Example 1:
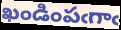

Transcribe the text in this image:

ఖండింపఁగాఁ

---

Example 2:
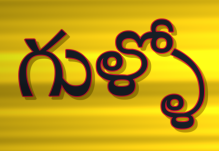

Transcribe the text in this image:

గుళ్ళో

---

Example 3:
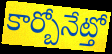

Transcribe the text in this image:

కార్బోనేట్తో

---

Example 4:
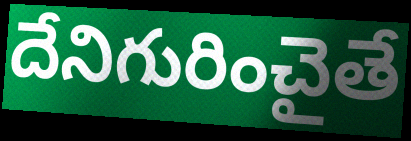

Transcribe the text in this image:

దేనిగురించైతే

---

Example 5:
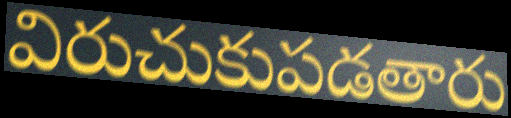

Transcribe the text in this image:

విరుచుకుపడతారు